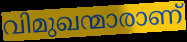
വിമുഖന്മാരാണ്